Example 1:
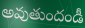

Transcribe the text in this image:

అవుతుందండీ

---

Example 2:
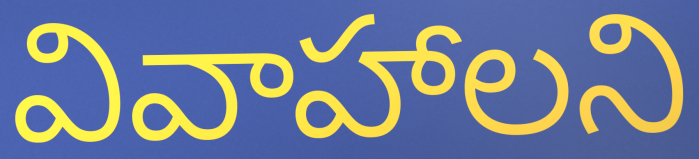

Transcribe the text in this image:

వివాహాలని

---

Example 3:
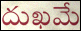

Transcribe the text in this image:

దుఖమే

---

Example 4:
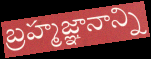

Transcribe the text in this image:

బ్రహ్మజ్ఞానాన్ని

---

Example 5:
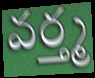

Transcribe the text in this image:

వర్త్మ